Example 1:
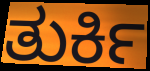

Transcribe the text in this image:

ತುರ್ಕಿ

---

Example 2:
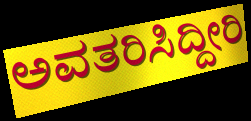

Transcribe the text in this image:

ಅವತರಿಸಿದ್ದೀರಿ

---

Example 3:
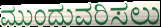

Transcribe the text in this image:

ಮುಂದುವರಿಸಲು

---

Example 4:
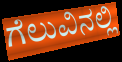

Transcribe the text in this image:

ಗೆಲುವಿನಲ್ಲಿ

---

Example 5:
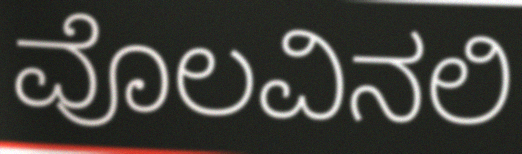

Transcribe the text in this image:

ವೊಲವಿನಲಿ